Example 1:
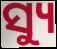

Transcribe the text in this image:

ସ୍ୟୁ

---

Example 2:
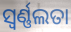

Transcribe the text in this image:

ସ୍ଵର୍ଣ୍ଣଲତା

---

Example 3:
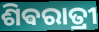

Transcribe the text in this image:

ଶିଵରାତ୍ରୀ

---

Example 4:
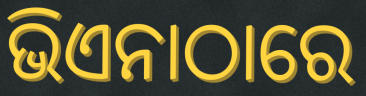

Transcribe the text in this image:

ଭିଏନାଠାରେ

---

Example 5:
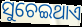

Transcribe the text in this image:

ସୁଚେଇଥାଏ